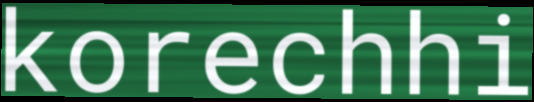
korechhi